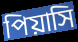
পিয়াসি